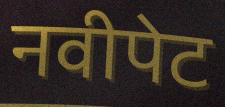
नवीपेट